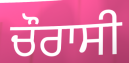
ਚੌਰਾਸੀ